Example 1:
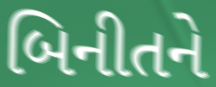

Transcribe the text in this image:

બિનીતને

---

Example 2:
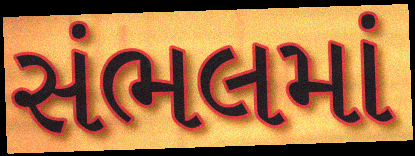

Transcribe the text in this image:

સંભલમાં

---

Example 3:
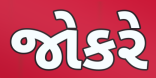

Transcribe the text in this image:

જોકરે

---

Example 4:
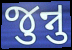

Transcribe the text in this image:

જુન્નુ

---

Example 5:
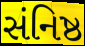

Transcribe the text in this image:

સંનિષ્ઠ